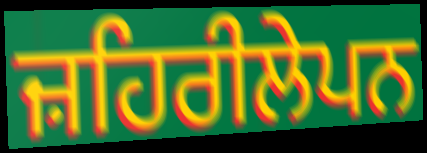
ਜ਼ਹਿਰੀਲੇਪਨ